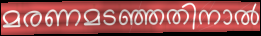
മരണമടഞ്ഞതിനാൽ